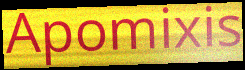
Apomixis